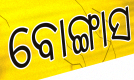
ବୋଙ୍ଗାସ